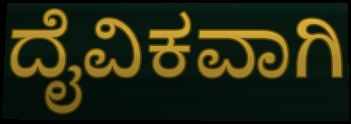
ದೈವಿಕವಾಗಿ